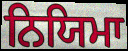
ਨਿਯਿਮਾ